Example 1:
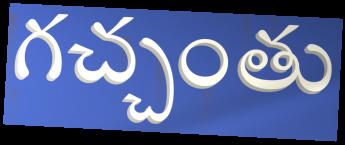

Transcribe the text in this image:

గచ్చంతు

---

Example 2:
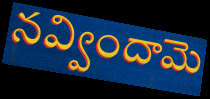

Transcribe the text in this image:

నవ్విందామె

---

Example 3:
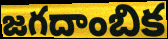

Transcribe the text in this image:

జగదాంబిక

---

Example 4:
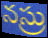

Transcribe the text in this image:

నస్రు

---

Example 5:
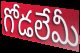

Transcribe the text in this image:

గోడలేమీ